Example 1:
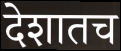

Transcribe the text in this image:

देशातच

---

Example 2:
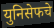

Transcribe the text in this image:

युनिसेफचे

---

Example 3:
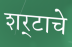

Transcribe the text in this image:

शर्टाचे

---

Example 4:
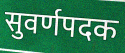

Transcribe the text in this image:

सुवर्णपदक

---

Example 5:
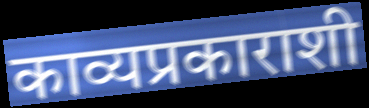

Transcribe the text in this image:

काव्यप्रकाराशी